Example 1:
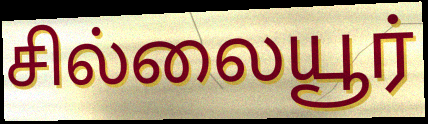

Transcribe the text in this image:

சில்லையூர்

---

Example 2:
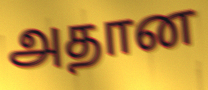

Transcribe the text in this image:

அதான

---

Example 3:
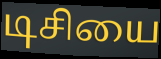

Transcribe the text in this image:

டிசியை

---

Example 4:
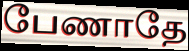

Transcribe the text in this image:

பேணாதே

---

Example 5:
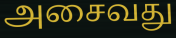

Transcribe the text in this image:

அசைவது